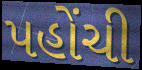
પહોંચી